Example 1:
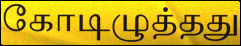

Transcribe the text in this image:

கோடிழுத்தது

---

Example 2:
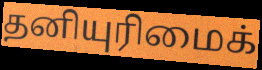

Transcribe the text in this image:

தனியுரிமைக்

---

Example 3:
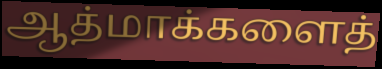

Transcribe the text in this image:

ஆத்மாக்களைத்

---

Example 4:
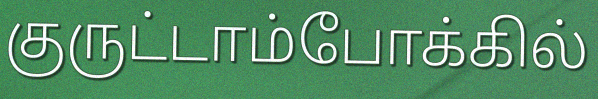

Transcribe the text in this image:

குருட்டாம்போக்கில்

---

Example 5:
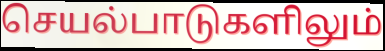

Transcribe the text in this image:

செயல்பாடுகளிலும்